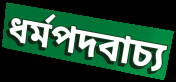
ধর্মপদবাচ্য